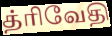
த்ரிவேதி